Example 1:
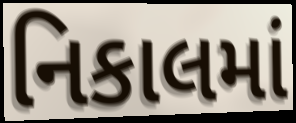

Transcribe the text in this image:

નિકાલમાં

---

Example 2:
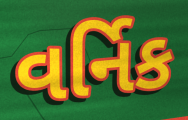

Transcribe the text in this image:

વર્નિક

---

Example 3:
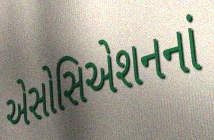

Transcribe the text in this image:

એસોસિએશનનાં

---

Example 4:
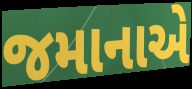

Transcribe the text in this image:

જમાનાએ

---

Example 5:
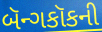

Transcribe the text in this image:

બૅન્ગકૉકની